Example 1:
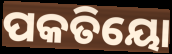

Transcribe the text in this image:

ପକତିୟୋ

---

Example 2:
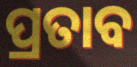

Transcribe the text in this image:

ପ୍ରତାବ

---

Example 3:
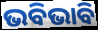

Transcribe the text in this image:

ଭବିଭାବି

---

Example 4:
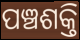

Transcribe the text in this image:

ପଞ୍ଚଶକ୍ତି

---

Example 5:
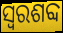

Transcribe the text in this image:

ସ୍ୱରଶବ୍ଦ